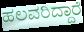
ಹಲವರಿದ್ದಾರೆ